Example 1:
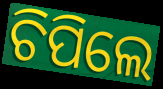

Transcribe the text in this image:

ଚିପିଲେ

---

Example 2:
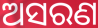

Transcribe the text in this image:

ଅସରଣ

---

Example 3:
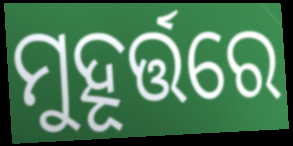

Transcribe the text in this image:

ମୁହୂର୍ତ୍ତରେ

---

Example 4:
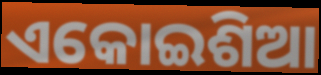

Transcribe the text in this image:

ଏକୋଇଶିଆ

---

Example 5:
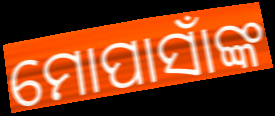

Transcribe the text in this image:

ମୋପାସାଁଙ୍କ